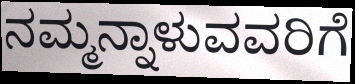
ನಮ್ಮನ್ನಾಳುವವರಿಗೆ